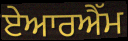
ਏਆਰਐੱਮ